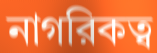
নাগরিকত্ব